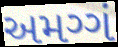
અમગ્ગં